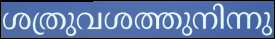
ശത്രുവശത്തുനിന്നു